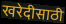
खरेदीसाठी